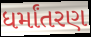
ધર્માંતરણ